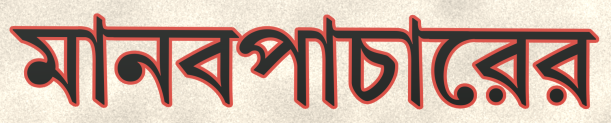
মানবপাচারের